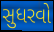
સુધરવો